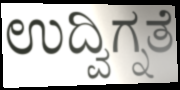
ಉದ್ವಿಗ್ನತೆ